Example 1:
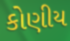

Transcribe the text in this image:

કોણીય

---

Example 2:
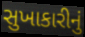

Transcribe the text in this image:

સુખાકારીનું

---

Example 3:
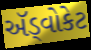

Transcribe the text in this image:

ઍડ્વોકેટ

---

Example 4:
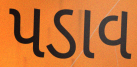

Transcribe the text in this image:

પડાવ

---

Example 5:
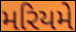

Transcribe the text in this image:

મરિયમે